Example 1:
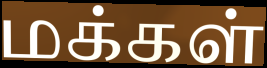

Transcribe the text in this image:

மக்கள்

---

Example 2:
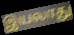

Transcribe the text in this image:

இயலாது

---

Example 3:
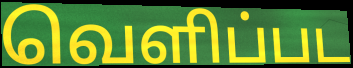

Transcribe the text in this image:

வெளிப்பட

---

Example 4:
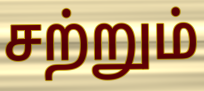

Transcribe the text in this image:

சற்றும்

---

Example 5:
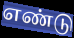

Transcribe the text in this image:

எண்டு